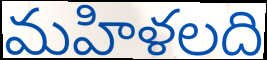
మహిళలది